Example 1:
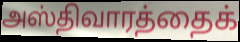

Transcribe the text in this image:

அஸ்திவாரத்தைக்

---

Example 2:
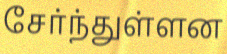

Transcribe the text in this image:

சேர்ந்துள்ளன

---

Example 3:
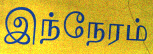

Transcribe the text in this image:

இந்நேரம்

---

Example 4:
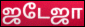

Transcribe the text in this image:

ஜடேஜா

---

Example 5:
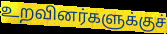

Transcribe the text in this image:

உறவினர்களுக்குச்